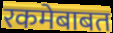
रकमेबाबत